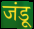
जंडू